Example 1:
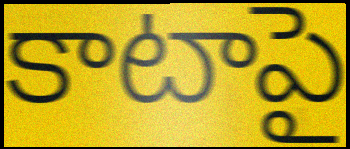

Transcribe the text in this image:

కాటాపై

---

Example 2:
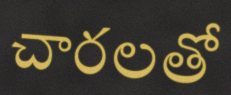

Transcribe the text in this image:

చారలతో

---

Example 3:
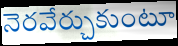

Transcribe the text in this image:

నెరవేర్చుకుంటూ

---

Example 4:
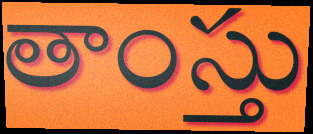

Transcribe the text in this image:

తాంస్తు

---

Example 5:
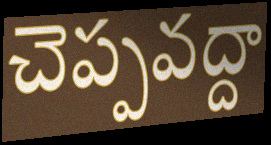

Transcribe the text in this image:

చెప్పవద్దా